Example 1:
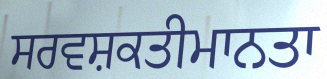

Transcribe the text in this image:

ਸਰਵਸ਼ਕਤੀਮਾਨਤਾ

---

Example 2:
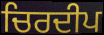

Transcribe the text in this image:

ਚਿਰਦੀਪ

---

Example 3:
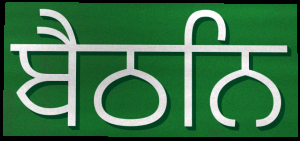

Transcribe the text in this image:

ਬੈਠਨਿ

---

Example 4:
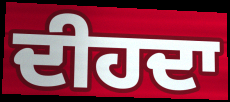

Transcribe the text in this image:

ਦੀਹਦਾ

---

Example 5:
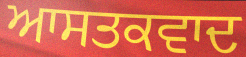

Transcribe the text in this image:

ਆਸਤਕਵਾਦ